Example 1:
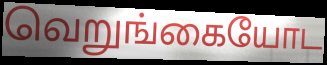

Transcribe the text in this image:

வெறுங்கையோட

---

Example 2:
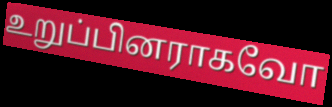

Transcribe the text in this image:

உறுப்பினராகவோ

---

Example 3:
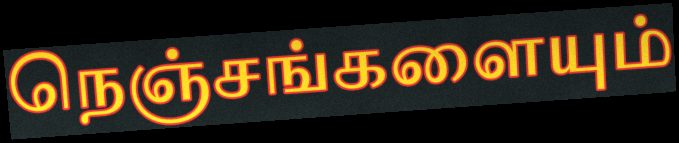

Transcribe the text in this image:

நெஞ்சங்களையும்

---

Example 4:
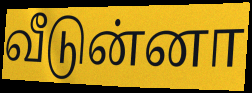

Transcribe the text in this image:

வீடுன்னா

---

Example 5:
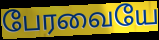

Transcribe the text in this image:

பேரவையே